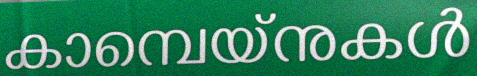
കാമ്പെയ്നുകൾ